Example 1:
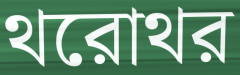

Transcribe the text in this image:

থরোথর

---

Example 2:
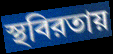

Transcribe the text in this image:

স্থবিরতায়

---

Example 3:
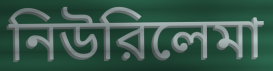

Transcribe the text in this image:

নিউরিলেমা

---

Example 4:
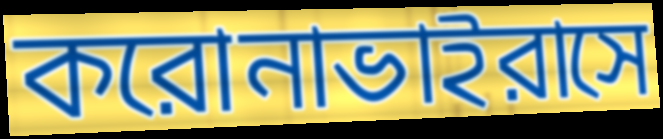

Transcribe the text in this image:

করোনাভাইরাসে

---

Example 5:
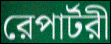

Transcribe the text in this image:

রেপার্টরী